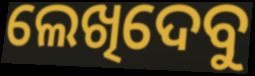
ଲେଖିଦେବୁ